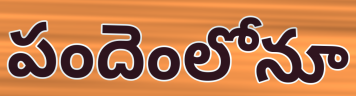
పందెంలోనూ